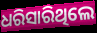
ଧରିସାରିଥିଲେ